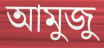
আমুজু